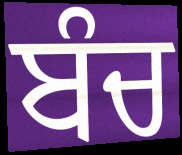
ਬੰਚ